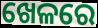
ଖେଳରେ